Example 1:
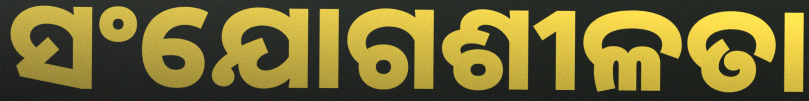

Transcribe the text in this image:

ସଂଯୋଗଶୀଳତା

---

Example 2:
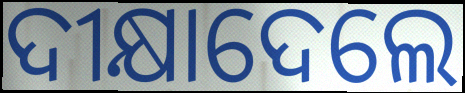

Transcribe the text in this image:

ଦୀକ୍ଷାଦେଲେ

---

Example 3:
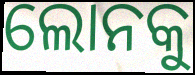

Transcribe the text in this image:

ଲୋନକୁ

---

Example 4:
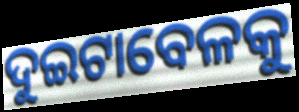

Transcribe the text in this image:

ଦୁଇଟାବେଳକୁ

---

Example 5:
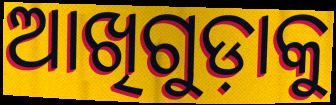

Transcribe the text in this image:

ଆଖିଗୁଡ଼ାକୁ